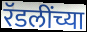
रॅडलींच्या